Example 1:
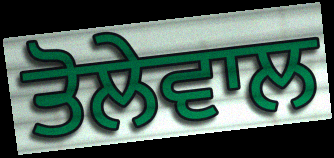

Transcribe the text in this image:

ਤੋਲੇਵਾਲ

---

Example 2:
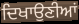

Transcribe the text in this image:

ਦਿਖਾਉਣੀਆਂ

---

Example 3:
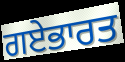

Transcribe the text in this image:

ਗਏਭਾਰਤ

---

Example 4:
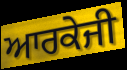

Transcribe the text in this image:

ਆਰਕੇਜੀ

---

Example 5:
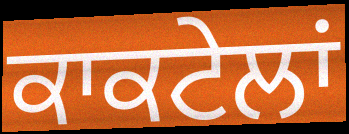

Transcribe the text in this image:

ਕਾਕਟੇਲਾਂ